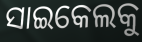
ସାଇକେଲକୁ